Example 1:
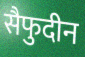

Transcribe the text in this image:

सैफुदीन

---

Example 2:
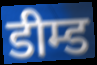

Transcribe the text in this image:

डीम्ड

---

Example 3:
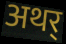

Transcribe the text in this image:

अथर्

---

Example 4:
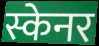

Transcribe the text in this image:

स्‍केनर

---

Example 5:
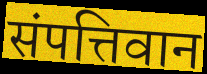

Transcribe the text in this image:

संपत्तिवान